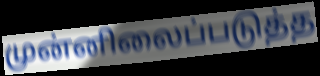
முன்னிலைப்படுத்த